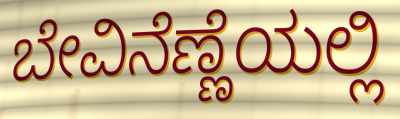
ಬೇವಿನೆಣ್ಣೆಯಲ್ಲಿ